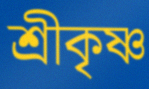
শ্রীকৃষ্ণ